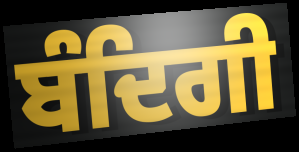
ਬੰਦਿਗੀ